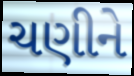
ચણીને